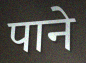
पाने